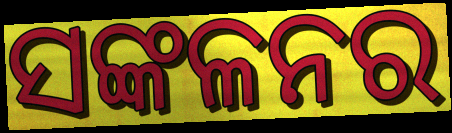
ସଙ୍କଳନର